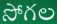
సోగల